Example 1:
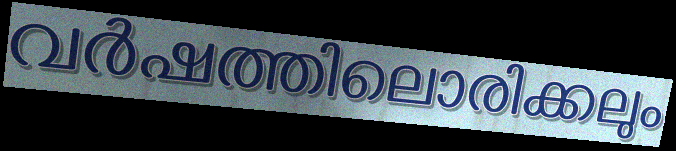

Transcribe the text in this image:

വർഷത്തിലൊരിക്കലും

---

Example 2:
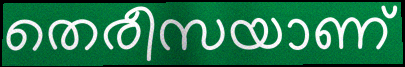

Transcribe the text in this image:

തെരീസയാണ്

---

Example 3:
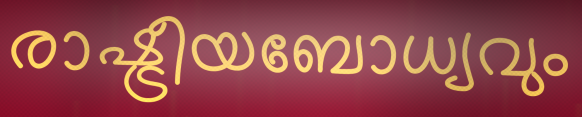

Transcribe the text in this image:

രാഷ്ട്രീയബോധ്യവും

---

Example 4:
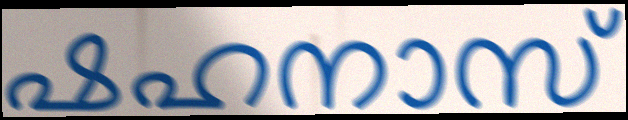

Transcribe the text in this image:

ഷഹനാസ്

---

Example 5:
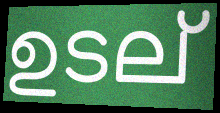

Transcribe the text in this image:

ഉടല്